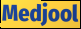
Medjool